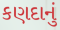
કણદાનું